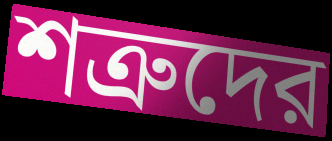
শত্রুদের